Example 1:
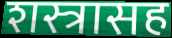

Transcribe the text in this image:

शस्त्रासह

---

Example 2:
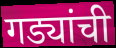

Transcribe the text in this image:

गड्यांची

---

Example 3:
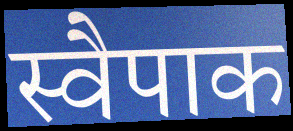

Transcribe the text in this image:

स्वैपाक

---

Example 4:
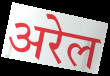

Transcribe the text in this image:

अरेल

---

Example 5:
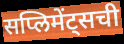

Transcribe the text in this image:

सप्लिमेंट्सची